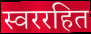
स्वररहित